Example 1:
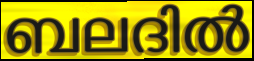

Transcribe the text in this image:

ബലദിൽ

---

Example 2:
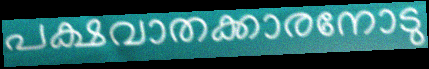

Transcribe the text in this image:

പക്ഷവാതക്കാരനോടു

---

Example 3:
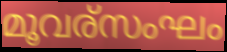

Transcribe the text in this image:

മൂവര്സംഘം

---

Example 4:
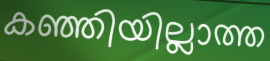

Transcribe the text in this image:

കഞ്ഞിയില്ലാത്ത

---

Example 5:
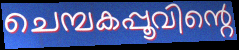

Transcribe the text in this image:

ചെമ്പകപ്പൂവിന്റെ